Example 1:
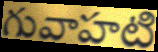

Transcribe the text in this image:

గువాహటి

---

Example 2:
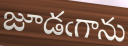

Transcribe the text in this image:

జూడఁగాను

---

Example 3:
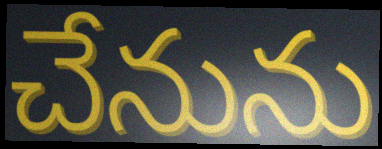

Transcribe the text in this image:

చేనును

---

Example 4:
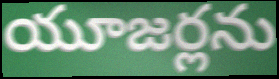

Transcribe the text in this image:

యూజర్లను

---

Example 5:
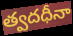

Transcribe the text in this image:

త్వదధీనా